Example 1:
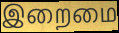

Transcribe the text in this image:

இறைமை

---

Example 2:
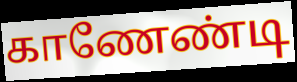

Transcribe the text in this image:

காணேண்டி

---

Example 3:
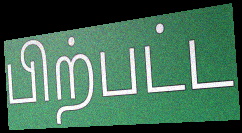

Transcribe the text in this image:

பிற்பட்ட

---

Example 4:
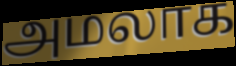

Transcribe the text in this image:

அமலாக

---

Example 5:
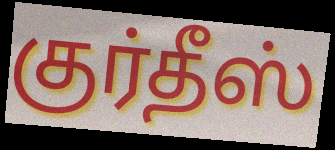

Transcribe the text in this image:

குர்தீஸ்